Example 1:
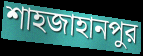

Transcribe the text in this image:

শাহজাহানপুর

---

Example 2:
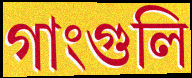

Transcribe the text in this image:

গাংগুলি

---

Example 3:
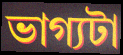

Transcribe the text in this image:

ভাগ্যটা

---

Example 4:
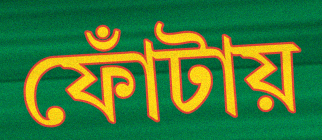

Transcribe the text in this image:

ফোঁটায়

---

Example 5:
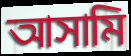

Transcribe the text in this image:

আসামি